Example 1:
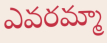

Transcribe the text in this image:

ఎవరమ్మా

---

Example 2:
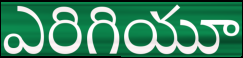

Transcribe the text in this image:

ఎరిగియూ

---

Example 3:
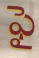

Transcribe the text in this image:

ఫై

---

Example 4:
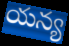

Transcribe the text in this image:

యన్య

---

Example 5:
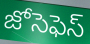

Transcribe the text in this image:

జోసెఫెస్